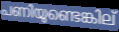
പണിയുണ്ടെങ്കില്